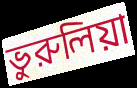
ভুরুলিয়া